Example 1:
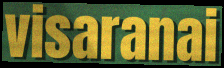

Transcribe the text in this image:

visaranai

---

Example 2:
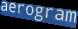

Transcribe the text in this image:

aerogram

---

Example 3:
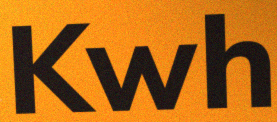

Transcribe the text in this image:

Kwh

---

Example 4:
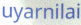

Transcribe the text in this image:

uyarnilai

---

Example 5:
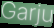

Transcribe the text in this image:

Garju